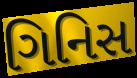
ગિનિસ